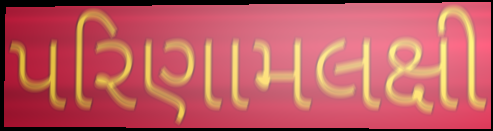
પરિણામલક્ષી